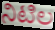
ನಿಟಿಲ